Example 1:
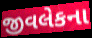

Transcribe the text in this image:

જીવલેકના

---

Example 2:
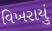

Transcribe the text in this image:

વિખરાયું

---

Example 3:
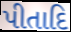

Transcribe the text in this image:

પીતાદિ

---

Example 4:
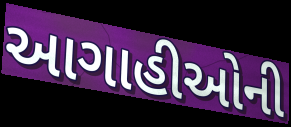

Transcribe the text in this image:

આગાહીઓની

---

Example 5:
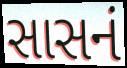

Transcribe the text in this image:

સાસનં